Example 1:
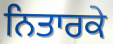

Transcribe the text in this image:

ਨਿਤਾਰਕੇ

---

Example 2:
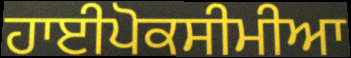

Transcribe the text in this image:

ਹਾਈਪੋਕਸੀਮੀਆ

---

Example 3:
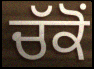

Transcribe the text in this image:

ਚੱਕੋਂ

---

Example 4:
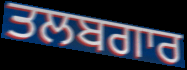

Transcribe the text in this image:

ਤਲਬਗਾਰ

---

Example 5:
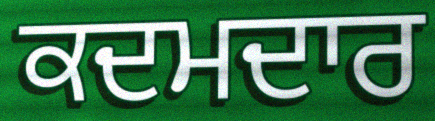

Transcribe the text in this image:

ਕਦਮਦਾਰ